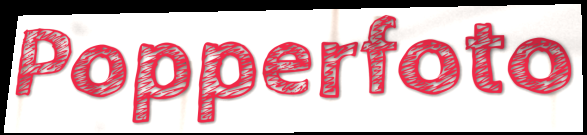
Popperfoto